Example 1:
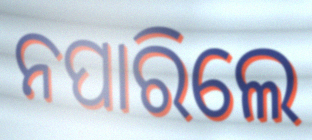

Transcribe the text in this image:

ନପାରିଲେ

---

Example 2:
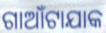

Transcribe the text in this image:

ଗାଆଁଟାଯାକ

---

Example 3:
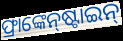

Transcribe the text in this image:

ଫ୍ରାଙ୍କେନ୍‌ଷ୍ଟାଇନ୍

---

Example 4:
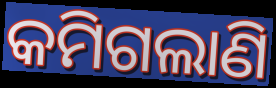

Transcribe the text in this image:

କମିଗଲାଣି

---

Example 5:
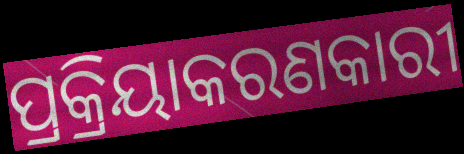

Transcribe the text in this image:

ପ୍ରକ୍ରିୟାକରଣକାରୀ